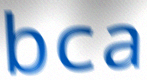
bca